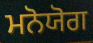
ਮਨੋਯੋਗ